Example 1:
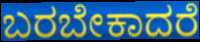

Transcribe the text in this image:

ಬರಬೇಕಾದರೆ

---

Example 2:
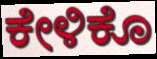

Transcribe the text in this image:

ಕೇಳಿಕೊ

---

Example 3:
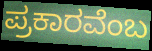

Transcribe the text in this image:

ಪ್ರಕಾರವೆಂಬ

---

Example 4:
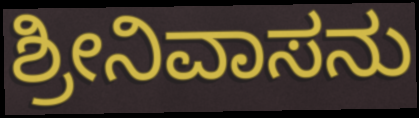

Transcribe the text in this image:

ಶ್ರೀನಿವಾಸನು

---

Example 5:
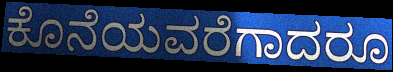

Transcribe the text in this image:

ಕೊನೆಯವರೆಗಾದರೂ